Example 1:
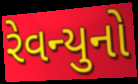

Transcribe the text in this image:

રેવન્યુનો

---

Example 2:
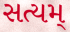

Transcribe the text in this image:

સત્યમ્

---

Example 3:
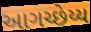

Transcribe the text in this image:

આગચ્છેય્ય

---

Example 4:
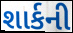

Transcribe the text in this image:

શાર્કની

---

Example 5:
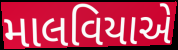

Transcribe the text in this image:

માલવિયાએ